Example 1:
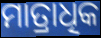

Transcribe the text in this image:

ମାତ୍ରାଧିକ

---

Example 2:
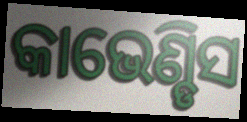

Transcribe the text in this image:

କାଭେଣ୍ଡିସ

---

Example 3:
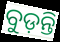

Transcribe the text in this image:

ବୁଡ଼ନ୍ତି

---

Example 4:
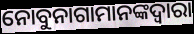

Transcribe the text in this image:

ନୋବୁନାଗାମାନଙ୍କଦ୍ୱାରା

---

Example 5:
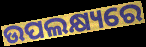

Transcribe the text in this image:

ଉପଲକ୍ଷ୍ୟରେ